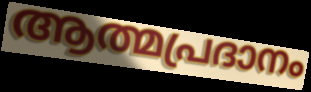
ആത്മപ്രദാനം